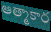
ఆత్మాకార